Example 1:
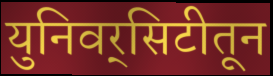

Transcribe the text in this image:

युनिवर्सिटीतून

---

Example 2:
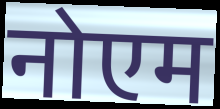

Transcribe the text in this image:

नोएम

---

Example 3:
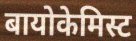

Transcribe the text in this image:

बायोकेमिस्ट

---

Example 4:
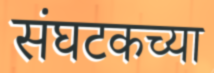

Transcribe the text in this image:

संघटकच्या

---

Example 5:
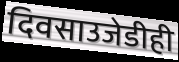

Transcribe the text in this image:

दिवसाउजेडीही